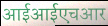
आईआईएचआर